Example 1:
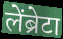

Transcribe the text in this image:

लेंब्रेटा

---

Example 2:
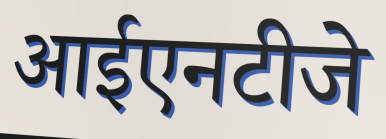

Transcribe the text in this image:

आईएनटीजे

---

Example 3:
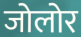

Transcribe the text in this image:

जोलोर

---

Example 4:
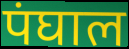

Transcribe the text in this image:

पंघाल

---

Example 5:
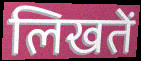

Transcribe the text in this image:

लिखतें